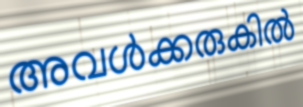
അവൾക്കരുകിൽ